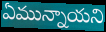
ఏమున్నాయని